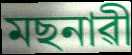
মছনাৱী